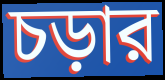
চড়ার